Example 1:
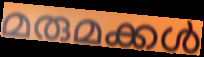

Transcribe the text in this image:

മരുമക്കൾ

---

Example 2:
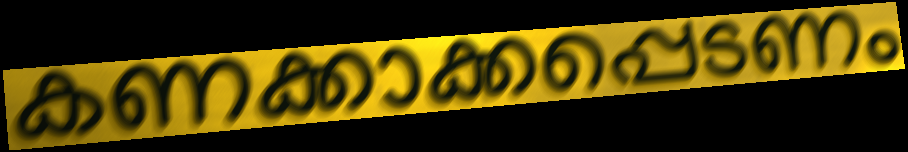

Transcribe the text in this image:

കണക്കാക്കപ്പെടണം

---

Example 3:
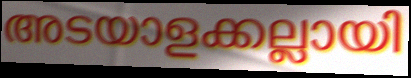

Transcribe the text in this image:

അടയാളക്കല്ലായി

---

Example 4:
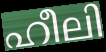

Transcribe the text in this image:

ഹീലി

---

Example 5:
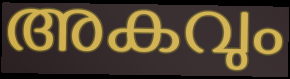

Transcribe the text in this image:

അകവും